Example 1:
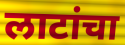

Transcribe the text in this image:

लाटांचा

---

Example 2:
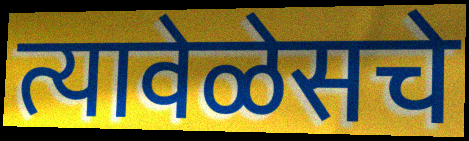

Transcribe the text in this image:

त्यावेळेसचे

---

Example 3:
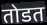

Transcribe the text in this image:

तोडत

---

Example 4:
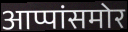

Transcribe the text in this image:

आप्पांसमोर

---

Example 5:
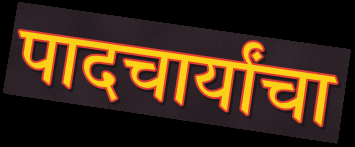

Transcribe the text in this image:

पादचार्यांचा